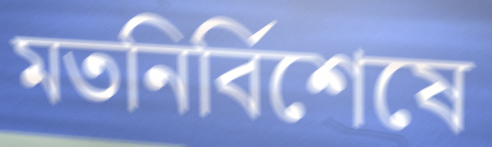
মতনির্বিশেষে